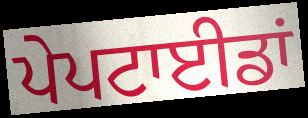
ਪੇਪਟਾਈਡਾਂ